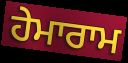
ਹੇਮਾਰਾਮ